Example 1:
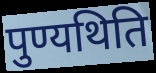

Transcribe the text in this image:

पुण्यथिति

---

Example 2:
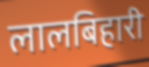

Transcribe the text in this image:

लालबिहारी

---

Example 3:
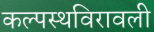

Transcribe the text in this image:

कल्पस्थविरावली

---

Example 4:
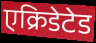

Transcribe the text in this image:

एक्रिडेटेड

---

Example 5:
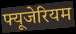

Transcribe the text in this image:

फ्यूजेरियम